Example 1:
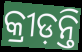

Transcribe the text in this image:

କ୍ରୀଡ଼ନ୍ତି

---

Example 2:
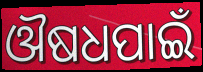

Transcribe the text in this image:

ଔଷଧପାଇଁ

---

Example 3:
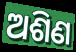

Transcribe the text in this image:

ଅଶିଣ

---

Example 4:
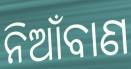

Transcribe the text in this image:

ନିଆଁବାଣ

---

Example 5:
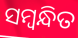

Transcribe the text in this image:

ସମ୍ଵନ୍ଧିତ